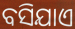
ବସିଯାଏ